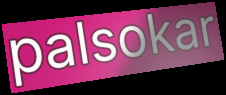
palsokar